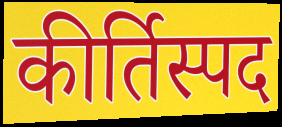
कीर्तिस्पद